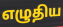
எழுதிய